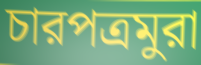
চারপত্রমুরা